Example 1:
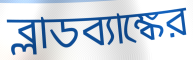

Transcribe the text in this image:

ব্লাডব্যাঙ্কের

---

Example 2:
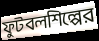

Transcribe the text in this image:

ফুটবলশিল্পের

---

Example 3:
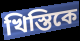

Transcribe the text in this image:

খিস্তিকে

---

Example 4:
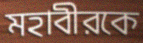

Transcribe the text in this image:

মহাবীরকে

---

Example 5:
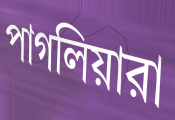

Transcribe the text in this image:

পাগলিয়ারা